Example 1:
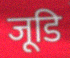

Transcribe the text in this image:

जूडि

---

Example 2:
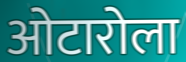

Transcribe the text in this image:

ओटारोला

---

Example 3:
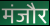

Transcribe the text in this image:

मंजौर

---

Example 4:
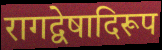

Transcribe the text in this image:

रागद्वेषादिरूप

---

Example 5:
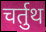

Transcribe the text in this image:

चर्तुथ